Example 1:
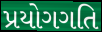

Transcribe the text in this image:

પ્રયોગગતિ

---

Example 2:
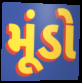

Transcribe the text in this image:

મૂંડો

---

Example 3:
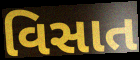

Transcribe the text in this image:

વિસાત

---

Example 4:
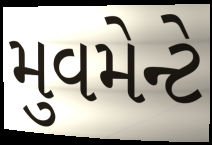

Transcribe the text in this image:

મુવમેન્ટે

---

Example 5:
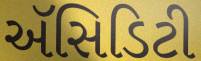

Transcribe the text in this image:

ઍસિડિટી